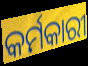
କର୍ମକାରୀ